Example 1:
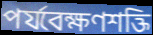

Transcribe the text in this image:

পর্যবেক্ষণশক্তি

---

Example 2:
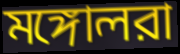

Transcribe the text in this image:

মঙ্গোলরা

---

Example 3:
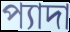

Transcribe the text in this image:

প্যাদা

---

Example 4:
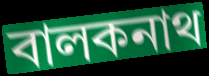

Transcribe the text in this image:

বালকনাথ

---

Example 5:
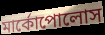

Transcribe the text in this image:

মার্কোপোলোস